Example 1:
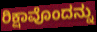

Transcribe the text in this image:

ರಿಕ್ಷಾವೊಂದನ್ನು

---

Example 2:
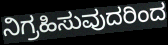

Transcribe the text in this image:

ನಿಗ್ರಹಿಸುವುದರಿಂದ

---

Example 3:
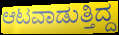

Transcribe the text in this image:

ಆಟವಾಡುತ್ತಿದ್ದ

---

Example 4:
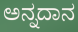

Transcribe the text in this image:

ಅನ್ನದಾನ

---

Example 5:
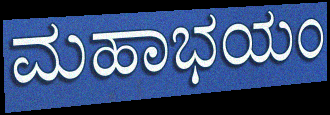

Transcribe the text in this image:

ಮಹಾಭಯಂ